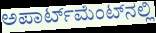
ಅಪಾರ್ಟ್‌ಮೆಂಟ್‌ನಲ್ಲಿ